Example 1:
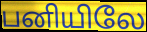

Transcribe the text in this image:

பனியிலே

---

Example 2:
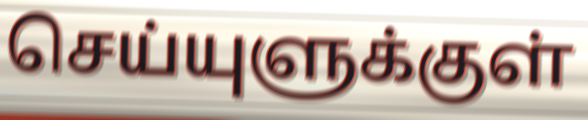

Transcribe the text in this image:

செய்யுளுக்குள்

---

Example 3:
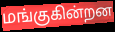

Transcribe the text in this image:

மங்குகின்றன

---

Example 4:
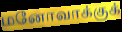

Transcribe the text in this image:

மனோவாக்குக்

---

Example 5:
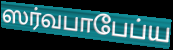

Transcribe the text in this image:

ஸர்வபாபேப்ய